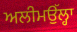
ਅਲੀਮਉੱਲ੍ਹਾ